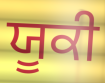
ਯੂਕੀ